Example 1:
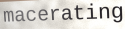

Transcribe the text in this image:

macerating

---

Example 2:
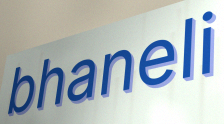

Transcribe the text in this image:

bhaneli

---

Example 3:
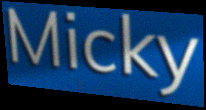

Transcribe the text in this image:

Micky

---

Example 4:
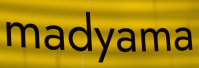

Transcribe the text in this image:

madyama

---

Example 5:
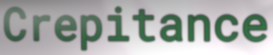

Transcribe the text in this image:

Crepitance